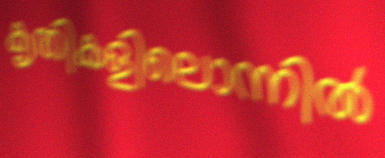
കൃതികളിലൊന്നിൽ